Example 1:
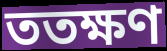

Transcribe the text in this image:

ততক্ষণ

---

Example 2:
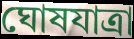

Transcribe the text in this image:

ঘোষযাত্রা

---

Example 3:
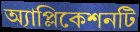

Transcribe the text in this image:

অ্যাপ্লিকেশনটি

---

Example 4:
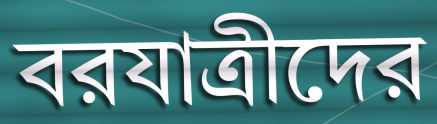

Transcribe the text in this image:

বরযাত্রীদের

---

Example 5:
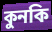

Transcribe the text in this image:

কুনকি